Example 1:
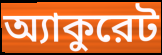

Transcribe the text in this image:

অ্যাকুরেট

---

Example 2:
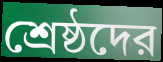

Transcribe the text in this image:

শ্রেষ্ঠদের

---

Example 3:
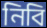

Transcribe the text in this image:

নিবি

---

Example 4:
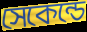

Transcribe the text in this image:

সেকেন্ডে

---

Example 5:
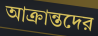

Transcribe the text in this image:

আক্রান্তদের